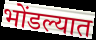
भोंडल्यात